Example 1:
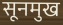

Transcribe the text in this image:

सूनमुख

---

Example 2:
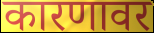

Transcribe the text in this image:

कारणावर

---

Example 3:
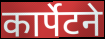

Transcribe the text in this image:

कार्पेटने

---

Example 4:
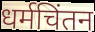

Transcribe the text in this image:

धर्मचिंतन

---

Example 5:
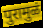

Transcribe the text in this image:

पुरामुळं